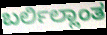
ಬರ್ಲಿಲ್ಲಾಂತ